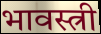
भावस्त्री